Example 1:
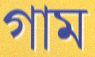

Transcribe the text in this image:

গাম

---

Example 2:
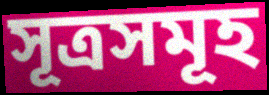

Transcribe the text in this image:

সূত্ৰসমূহ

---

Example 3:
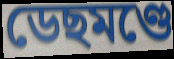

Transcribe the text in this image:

ডেছমণ্ডে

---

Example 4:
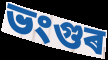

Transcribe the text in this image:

ভংগুৰ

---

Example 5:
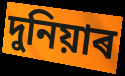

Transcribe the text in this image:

দুনিয়াৰ